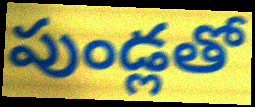
పుండ్లతో